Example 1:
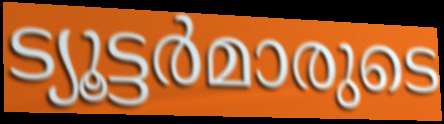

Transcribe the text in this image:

ട്യൂട്ടർമാരുടെ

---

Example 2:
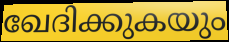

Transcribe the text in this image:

ഖേദിക്കുകയും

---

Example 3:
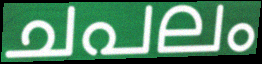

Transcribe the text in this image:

ചപലം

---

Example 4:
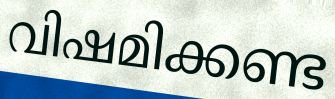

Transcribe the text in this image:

വിഷമിക്കണ്ട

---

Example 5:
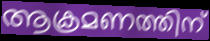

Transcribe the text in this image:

ആക്രമണത്തിന്